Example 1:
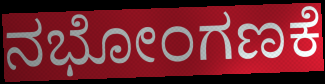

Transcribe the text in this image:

ನಭೋಂಗಣಕೆ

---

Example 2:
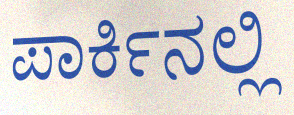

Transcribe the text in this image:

ಪಾರ್ಕಿನಲ್ಲಿ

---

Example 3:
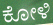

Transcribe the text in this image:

ಕೋಳಿ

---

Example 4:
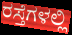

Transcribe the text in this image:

ರಸ್ತೆಗಳಲ್ಲಿ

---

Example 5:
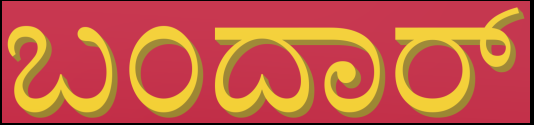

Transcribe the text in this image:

ಬಂದಾರ್